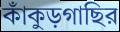
কাঁকুড়গাছির